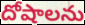
దోషాలను